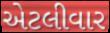
એટલીવાર